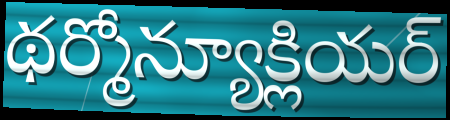
థర్మోన్యూక్లియర్